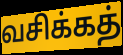
வசிக்கத்